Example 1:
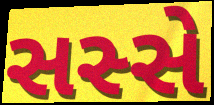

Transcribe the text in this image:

સસ્સે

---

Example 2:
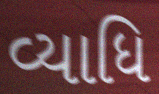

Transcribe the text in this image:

વ્યાધિ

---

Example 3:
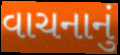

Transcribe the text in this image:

વાચનાનું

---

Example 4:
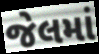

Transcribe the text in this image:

જેલમાં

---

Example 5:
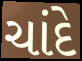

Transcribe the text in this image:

ચાંદે